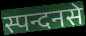
स्पन्दनसे